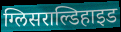
ग्लिसराल्डिहाइड